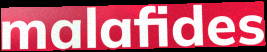
malafides